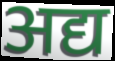
अद्य